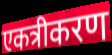
एकत्रीकरण